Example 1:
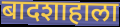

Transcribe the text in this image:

बादशाहाला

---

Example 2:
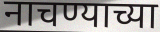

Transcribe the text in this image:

नाचण्याच्या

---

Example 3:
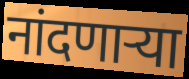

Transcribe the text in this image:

नांदणाऱ्या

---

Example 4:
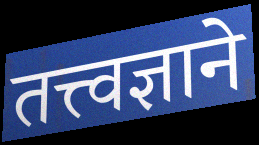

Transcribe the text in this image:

तत्त्वज्ञाने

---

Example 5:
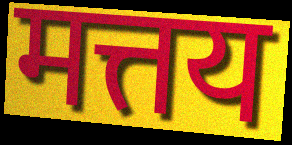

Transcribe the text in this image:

मत्तय